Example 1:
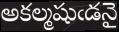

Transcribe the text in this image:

అకల్మషుఁడనై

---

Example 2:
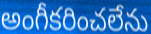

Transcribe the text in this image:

అంగీకరించలేను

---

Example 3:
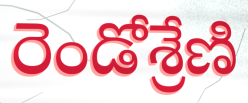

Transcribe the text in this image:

రెండోశ్రేణి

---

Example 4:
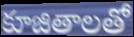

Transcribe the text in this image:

కూజితాలతో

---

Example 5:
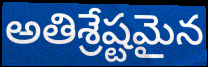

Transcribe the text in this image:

అతిశ్రేష్టమైన